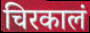
चिरकालं